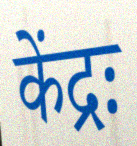
केंद्रः